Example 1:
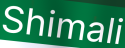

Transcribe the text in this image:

Shimali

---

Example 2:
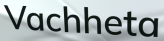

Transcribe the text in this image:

Vachheta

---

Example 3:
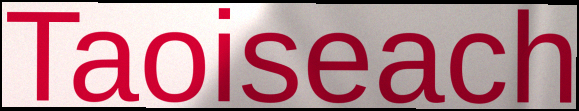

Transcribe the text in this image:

Taoiseach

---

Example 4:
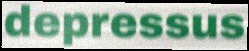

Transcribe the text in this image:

depressus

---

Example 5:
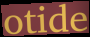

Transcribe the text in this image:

otide